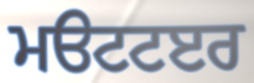
ਮੳਟਟੲਰ